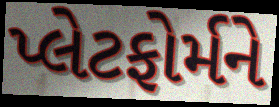
પ્લેટફોર્મને